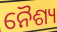
ନୈଶ୍ୟ